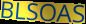
BLSOAS